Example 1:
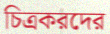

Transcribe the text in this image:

চিত্রকরদের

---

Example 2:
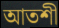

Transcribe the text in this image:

আতশী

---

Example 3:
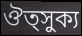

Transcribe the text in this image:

ঔত্সুক্য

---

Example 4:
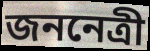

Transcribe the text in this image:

জননেত্রী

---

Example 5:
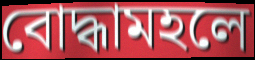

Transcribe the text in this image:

বোদ্ধামহলে